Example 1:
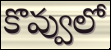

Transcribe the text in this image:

కొవ్వులో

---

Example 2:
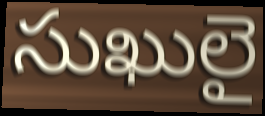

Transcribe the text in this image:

సుఖులై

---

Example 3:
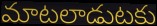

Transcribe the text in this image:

మాటలాడుటకు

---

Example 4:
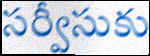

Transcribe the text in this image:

సర్వీసుకు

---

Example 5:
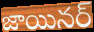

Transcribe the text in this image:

జాయినర్